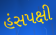
હંસપક્ષી